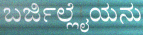
ಬರ್ಜಿಲ್ಲೈಯನು